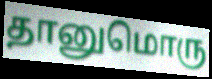
தானுமொரு